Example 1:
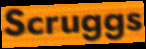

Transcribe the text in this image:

Scruggs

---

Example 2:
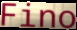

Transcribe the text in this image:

Fino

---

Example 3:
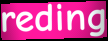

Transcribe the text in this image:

reding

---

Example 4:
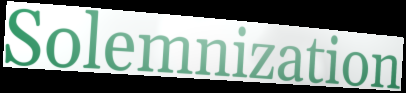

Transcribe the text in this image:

Solemnization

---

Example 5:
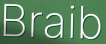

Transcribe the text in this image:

Braib